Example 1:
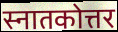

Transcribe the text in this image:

स्नातकोत्तर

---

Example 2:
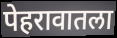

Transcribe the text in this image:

पेहरावातला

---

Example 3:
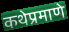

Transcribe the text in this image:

कथेप्रमाणे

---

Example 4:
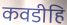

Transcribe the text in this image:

कवडीहि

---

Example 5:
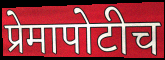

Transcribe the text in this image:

प्रेमापोटीच